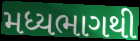
મધ્યભાગથી